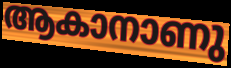
ആകാനാണു